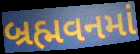
બ્રહ્મવનમાં